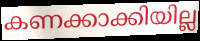
കണക്കാക്കിയില്ല